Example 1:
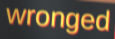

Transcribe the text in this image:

wronged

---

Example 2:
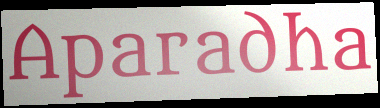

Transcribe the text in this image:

Aparadha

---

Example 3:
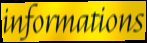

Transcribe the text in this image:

informations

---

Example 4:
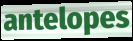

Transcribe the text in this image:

antelopes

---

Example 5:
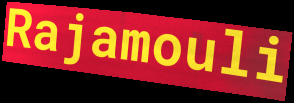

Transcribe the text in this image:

Rajamouli